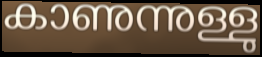
കാണുന്നുള്ളു